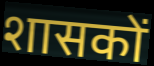
शासकों